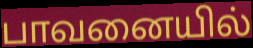
பாவனையில்